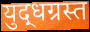
युद्धग्रस्त